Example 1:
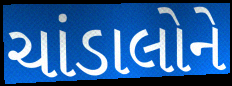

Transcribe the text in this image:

ચાંડાલોને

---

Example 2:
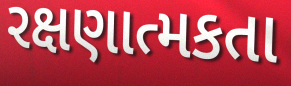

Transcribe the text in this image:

રક્ષણાત્મકતા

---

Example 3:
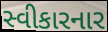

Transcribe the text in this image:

સ્વીકારનાર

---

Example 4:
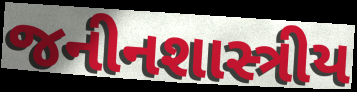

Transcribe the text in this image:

જનીનશાસ્ત્રીય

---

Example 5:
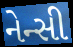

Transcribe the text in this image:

નેન્સી